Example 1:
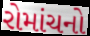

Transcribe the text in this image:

રોમાંચનો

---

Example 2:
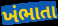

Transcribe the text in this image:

ખંભાતા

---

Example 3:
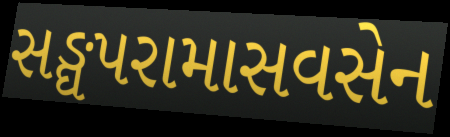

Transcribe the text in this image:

સઙ્ઘપરામાસવસેન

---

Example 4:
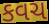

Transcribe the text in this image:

કવચ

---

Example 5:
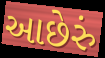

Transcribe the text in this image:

આછેરું